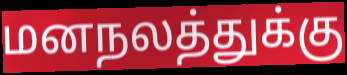
மனநலத்துக்கு